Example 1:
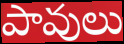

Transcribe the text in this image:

పావులు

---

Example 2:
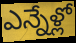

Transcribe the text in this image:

ఎన్నేళ్లో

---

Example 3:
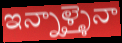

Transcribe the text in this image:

ఇన్నాళ్ళైనా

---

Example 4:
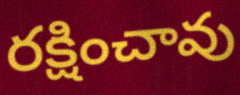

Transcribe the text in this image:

రక్షించావు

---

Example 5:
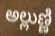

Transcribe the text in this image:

అల్లుణ్ణి